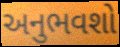
અનુભવશો